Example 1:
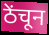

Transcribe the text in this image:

ठेंचून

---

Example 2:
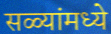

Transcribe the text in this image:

सळ्यांमध्ये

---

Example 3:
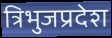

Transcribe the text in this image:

त्रिभुजप्रदेश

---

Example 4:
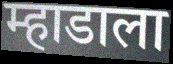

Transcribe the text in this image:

म्हाडाला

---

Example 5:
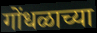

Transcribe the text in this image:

गोंधळाच्या